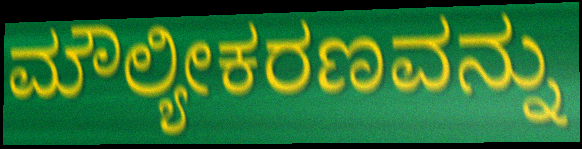
ಮೌಲ್ಯೀಕರಣವನ್ನು